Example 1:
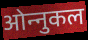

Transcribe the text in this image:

ओन्नुकल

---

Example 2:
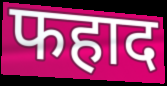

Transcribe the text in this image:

फहाद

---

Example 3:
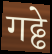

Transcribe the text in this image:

गढ्ढे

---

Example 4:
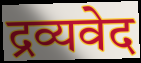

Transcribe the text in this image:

द्रव्यवेद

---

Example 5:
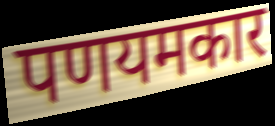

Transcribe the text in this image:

पणयमकार